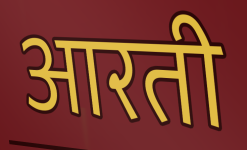
आरती